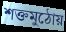
শক্তমুঠোয়